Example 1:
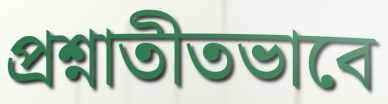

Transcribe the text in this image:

প্রশ্নাতীতভাবে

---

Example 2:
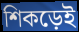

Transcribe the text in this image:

শিকড়েই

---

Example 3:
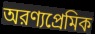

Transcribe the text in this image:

অরণ্যপ্রেমিক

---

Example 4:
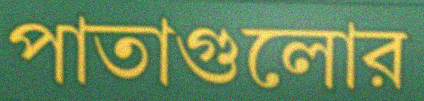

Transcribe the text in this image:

পাতাগুলোর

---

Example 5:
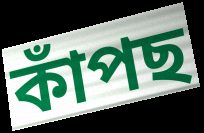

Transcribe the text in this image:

কাঁপছ